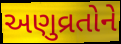
અણુવ્રતોને